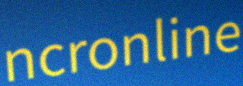
ncronline